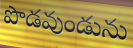
పొడవుండును